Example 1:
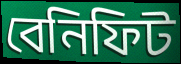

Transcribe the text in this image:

বেনিফিট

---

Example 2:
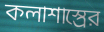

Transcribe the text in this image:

কলাশাস্ত্রের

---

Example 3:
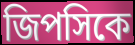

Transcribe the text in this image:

জিপসিকে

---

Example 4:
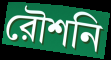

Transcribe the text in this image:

রৌশনি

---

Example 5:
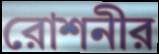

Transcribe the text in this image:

রোশনীর